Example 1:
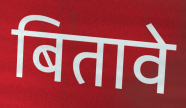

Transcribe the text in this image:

बितावे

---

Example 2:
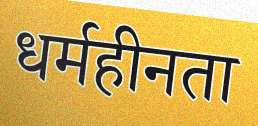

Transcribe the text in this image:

धर्महीनता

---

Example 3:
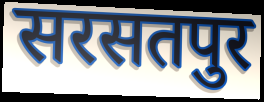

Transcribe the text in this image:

सरसतपुर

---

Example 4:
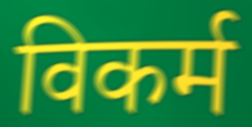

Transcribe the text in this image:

विकर्म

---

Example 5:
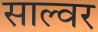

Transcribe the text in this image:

साल्वर